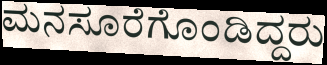
ಮನಸೂರೆಗೊಂಡಿದ್ದರು